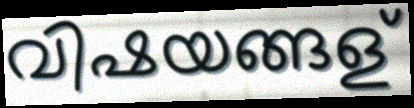
വിഷയങ്ങള്